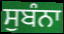
ਸੁਬੰਨਾ